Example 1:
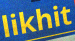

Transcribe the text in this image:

likhit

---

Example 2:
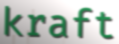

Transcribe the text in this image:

kraft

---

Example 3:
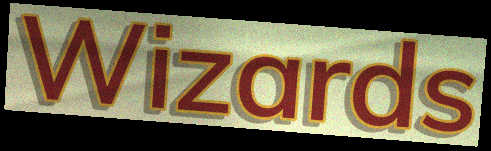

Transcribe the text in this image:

Wizards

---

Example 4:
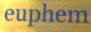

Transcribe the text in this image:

euphem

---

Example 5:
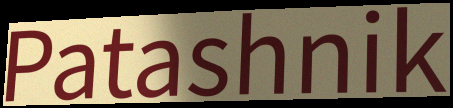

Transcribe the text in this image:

Patashnik